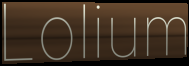
Lolium